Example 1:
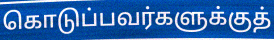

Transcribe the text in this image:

கொடுப்பவர்களுக்குத்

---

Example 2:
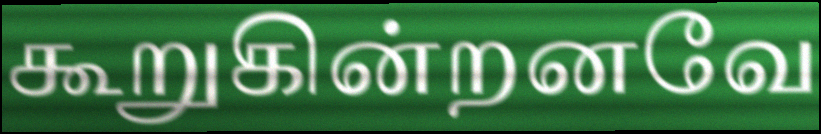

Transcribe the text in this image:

கூறுகின்றனவே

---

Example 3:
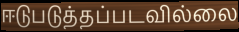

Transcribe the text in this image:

ஈடுபடுத்தப்படவில்லை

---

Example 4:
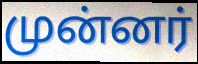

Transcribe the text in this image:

முன்னர்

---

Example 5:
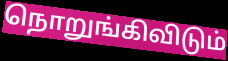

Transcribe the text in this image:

நொறுங்கிவிடும்